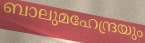
ബാലുമഹേന്ദ്രയും